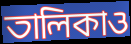
তালিকাও